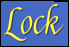
Lock